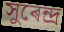
সুৰেন্দ্ৰ